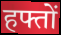
हफ्तों